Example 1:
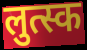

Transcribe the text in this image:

लुत्स्क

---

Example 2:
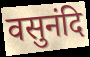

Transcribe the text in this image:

वसुनंदि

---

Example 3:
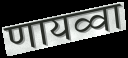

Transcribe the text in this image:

णायव्वा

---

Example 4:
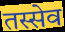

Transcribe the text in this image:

तस्सेव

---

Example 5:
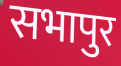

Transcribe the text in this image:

सभापुर